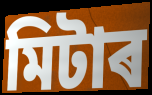
মিটাৰ